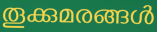
തൂക്കുമരങ്ങൾ